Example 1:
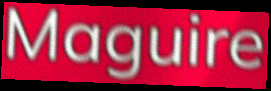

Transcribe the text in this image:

Maguire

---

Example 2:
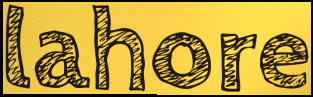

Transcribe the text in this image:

lahore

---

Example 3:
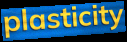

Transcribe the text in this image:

plasticity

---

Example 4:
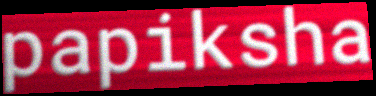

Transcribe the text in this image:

papiksha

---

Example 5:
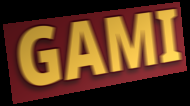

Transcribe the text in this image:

GAMI